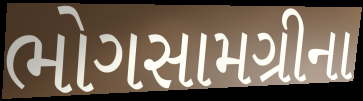
ભોગસામગ્રીના